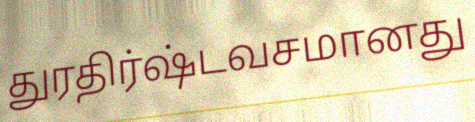
துரதிர்ஷ்டவசமானது